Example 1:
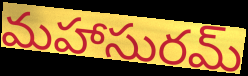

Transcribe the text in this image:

మహాసురమ్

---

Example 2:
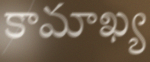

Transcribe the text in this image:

కామాఖ్య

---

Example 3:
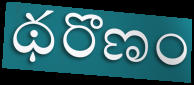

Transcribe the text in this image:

థరొణం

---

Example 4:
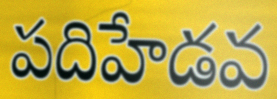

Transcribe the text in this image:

పదిహేడవ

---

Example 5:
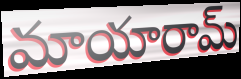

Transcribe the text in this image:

మాయారామ్